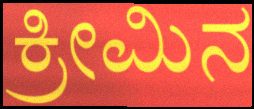
ಕ್ರೀಮಿನ